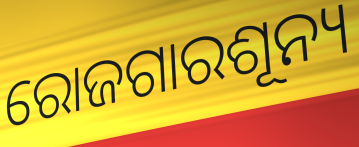
ରୋଜଗାରଶୂନ୍ୟ